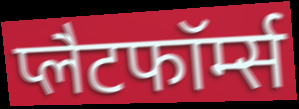
प्लैटफॉर्म्स